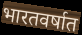
भारतवर्षात